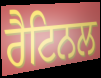
ਰੈਟਿਨਲ